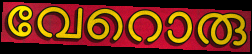
വേറൊരു